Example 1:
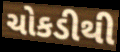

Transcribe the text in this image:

ચોકડીથી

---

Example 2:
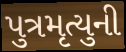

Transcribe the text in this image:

પુત્રમૃત્યુની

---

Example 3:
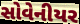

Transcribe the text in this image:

સોવેનીયર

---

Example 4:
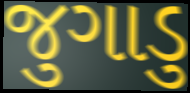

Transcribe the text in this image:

જુગાડુ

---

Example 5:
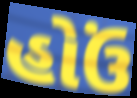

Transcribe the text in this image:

હોઉં